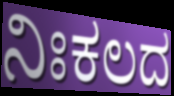
ನಿಃಕಲದ